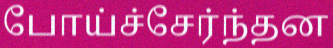
போய்ச்சேர்ந்தன